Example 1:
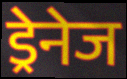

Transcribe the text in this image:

ड्रेनेज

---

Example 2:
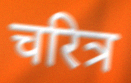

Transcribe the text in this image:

चरित्र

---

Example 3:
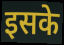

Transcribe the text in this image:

इसके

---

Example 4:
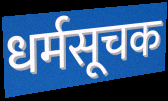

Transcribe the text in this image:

धर्मसूचक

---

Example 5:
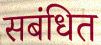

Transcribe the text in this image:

सबंधित